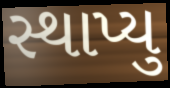
સ્થાપ્યુ